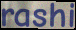
rashi